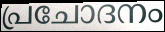
പ്രചോദനം